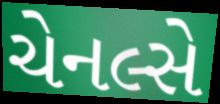
ચેનલ્સે